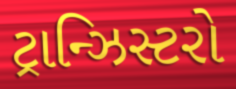
ટ્રાન્ઝિસ્ટરો